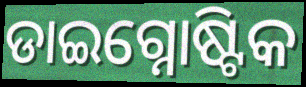
ଡାଇଗ୍ନୋଷ୍ଟିକ